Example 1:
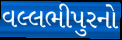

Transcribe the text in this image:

વલ્લભીપુરનો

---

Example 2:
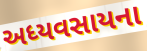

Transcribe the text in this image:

અધ્યવસાયના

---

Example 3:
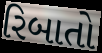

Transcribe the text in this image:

રિબાતો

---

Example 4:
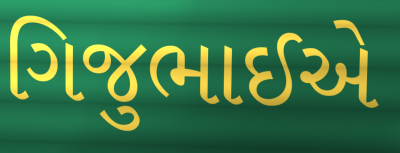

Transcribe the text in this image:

ગિજુભાઈએ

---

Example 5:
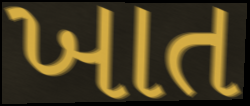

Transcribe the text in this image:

ખાત